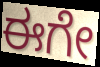
ಈಗೇ